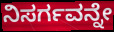
ನಿಸರ್ಗವನ್ನೇ